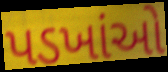
પડખાંઓ